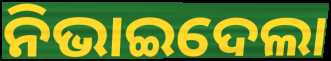
ନିଭାଇଦେଲା